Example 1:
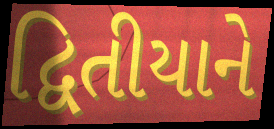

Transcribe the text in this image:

દ્વિતીયાને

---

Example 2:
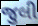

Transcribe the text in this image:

જુલી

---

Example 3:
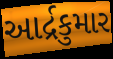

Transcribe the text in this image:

આર્દ્રકુમાર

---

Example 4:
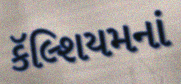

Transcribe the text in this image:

કૅલ્શિયમનાં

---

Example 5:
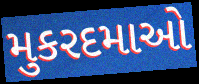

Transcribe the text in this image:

મુકરદમાઓ